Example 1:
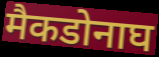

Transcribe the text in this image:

मैकडोनाघ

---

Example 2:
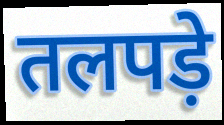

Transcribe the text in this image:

तलपड़े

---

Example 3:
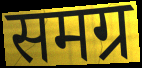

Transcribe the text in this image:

समग्र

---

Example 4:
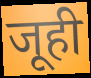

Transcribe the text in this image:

जूही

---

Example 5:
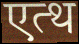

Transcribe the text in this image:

एत्थ